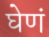
घेणं